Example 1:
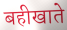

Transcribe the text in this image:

बहीखाते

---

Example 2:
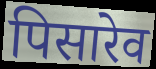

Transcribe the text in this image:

पिसारेव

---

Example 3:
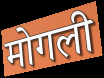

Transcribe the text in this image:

मोगली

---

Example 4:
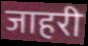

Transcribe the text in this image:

जाहरी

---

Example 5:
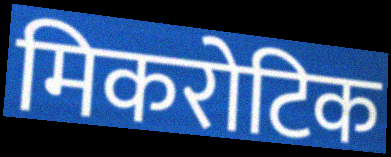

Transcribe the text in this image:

मिकरोटिक